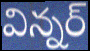
విన్నర్